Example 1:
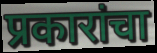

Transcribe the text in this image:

प्रकारांचा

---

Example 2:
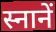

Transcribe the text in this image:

स्नानें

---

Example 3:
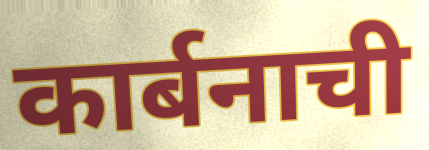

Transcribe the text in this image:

कार्बनाची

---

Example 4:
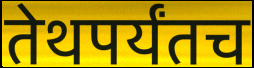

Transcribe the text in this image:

तेथपर्यंतच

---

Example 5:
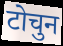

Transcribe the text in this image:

टोचुन